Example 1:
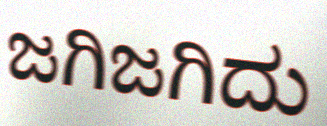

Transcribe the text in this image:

ಜಗಿಜಗಿದು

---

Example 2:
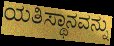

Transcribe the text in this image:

ಯತಿಸ್ಥಾನವನ್ನು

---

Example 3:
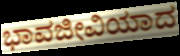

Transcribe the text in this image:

ಭಾವಜೀವಿಯಾದ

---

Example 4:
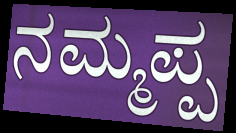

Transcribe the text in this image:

ನಮ್ಮಪ್ಪ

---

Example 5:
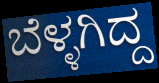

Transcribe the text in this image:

ಬೆಳ್ಳಗಿದ್ದ